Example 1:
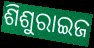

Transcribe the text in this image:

ଶିଶୁରାଇଜ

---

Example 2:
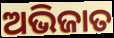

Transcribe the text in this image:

ଅଭିଜାତ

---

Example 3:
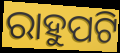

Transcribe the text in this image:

ରାହୁପଟି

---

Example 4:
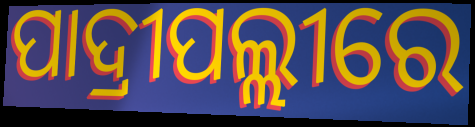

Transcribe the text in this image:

ପାଦ୍ରୀପଲ୍ଲୀରେ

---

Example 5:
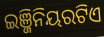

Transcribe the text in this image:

ଇଞ୍ଜିନିୟରଟିଏ